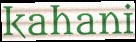
kahani